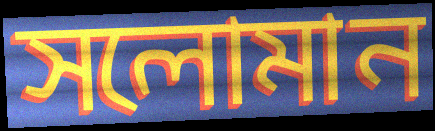
সলোমান